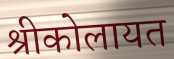
श्रीकोलायत